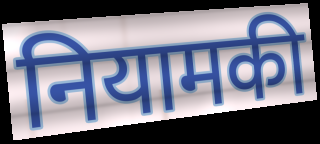
नियामकी